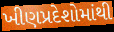
ખીણપ્રદેશોમાંથી